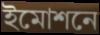
ইমোশনে